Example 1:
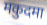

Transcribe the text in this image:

मकुदमा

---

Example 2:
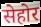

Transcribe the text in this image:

सेहोर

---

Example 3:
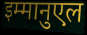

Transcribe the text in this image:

इम्मानुएल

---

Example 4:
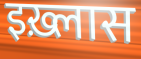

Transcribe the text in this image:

इख़्लास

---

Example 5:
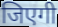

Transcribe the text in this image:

जिएगी